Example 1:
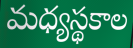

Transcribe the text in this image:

మధ్యస్థకాల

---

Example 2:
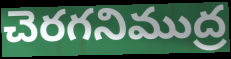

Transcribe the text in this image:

చెరగనిముద్ర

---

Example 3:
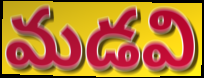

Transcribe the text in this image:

మడవి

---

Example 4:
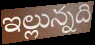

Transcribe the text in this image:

ఇల్లున్నది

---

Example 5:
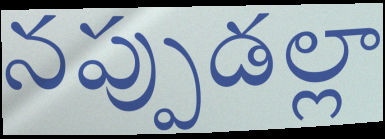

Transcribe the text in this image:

నప్పుడల్లా